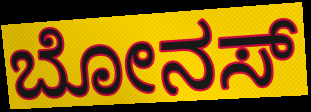
ಬೋನಸ್